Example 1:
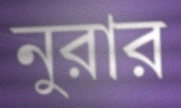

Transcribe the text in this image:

নুরার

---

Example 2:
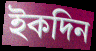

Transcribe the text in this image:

ইকদিন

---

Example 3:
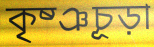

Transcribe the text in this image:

কৃষ্ঞচূড়া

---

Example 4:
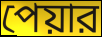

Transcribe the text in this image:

পেয়ার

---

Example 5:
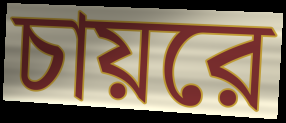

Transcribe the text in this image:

চায়রে